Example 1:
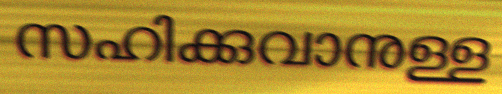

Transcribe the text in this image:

സഹിക്കുവാനുള്ള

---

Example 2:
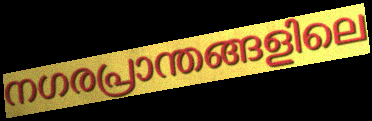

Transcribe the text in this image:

നഗരപ്രാന്തങ്ങളിലെ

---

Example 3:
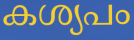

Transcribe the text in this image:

കശ്യപം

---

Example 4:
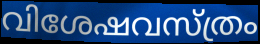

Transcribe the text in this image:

വിശേഷവസ്ത്രം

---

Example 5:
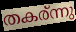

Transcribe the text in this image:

തകര്ന്നു